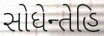
સોધેન્તેહિ